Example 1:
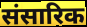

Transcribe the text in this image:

संसारिक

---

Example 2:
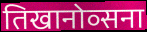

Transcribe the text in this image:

तिखानोव्सना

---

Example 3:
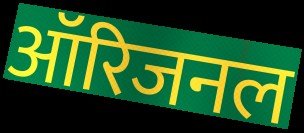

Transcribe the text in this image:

ऑरिजनल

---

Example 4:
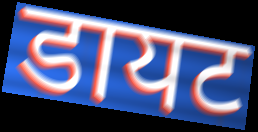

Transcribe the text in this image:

डायट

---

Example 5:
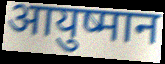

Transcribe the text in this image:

आयुष्मान